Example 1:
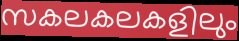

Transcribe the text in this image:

സകലകലകളിലും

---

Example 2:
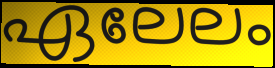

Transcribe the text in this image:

ഏലേലം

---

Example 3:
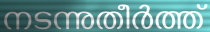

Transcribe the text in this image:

നടന്നുതീർത്ത്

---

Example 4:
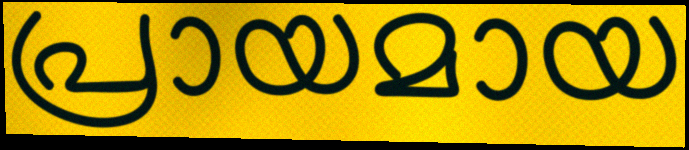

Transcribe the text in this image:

പ്രായമായ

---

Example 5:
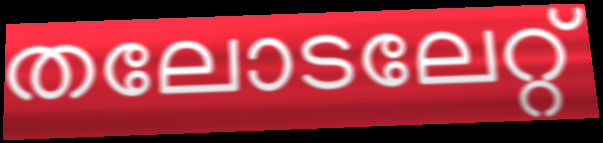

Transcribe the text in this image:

തലോടലേറ്റ്